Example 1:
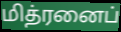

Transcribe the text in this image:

மித்ரனைப்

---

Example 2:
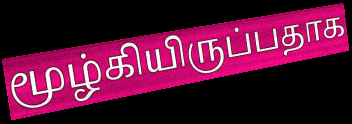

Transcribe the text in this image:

மூழ்கியிருப்பதாக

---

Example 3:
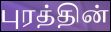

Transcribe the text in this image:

புரத்தின்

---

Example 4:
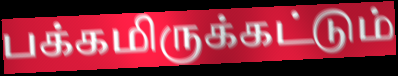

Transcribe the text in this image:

பக்கமிருக்கட்டும்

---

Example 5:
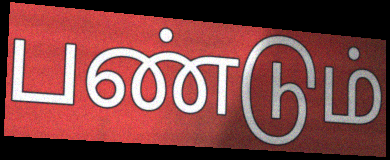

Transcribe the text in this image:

பண்டும்